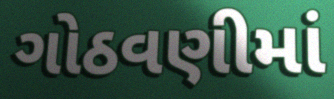
ગોઠવણીમાં